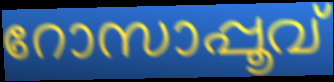
റോസാപ്പൂവ്